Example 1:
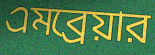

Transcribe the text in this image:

এমব্রেয়ার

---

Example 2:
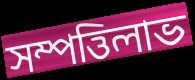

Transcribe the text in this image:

সম্পত্তিলাভ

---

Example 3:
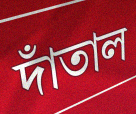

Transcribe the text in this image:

দাঁতাল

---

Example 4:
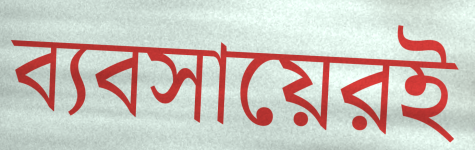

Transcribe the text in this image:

ব্যবসায়েরই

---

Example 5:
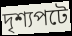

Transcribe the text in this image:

দৃশ্যপটে